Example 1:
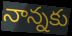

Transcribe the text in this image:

నాన్నకు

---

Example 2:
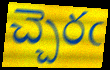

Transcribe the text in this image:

చ్చెరఁ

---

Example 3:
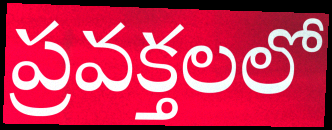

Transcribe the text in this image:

ప్రవక్తలలో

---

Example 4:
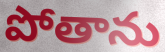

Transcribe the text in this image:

పోతాను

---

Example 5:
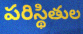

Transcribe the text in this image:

పరిస్థితుల